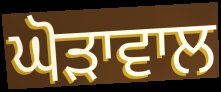
ਘੋੜਾਵਾਲ